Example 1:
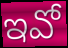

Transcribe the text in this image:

ఇవో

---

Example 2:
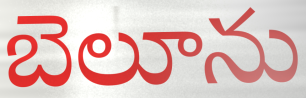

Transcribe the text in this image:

బెలూను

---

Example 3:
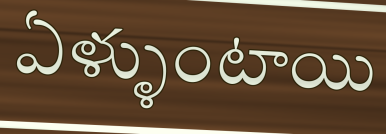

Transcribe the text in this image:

ఏళ్ళుంటాయి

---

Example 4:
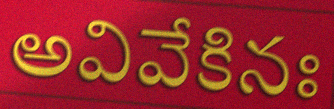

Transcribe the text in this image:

అవివేకినః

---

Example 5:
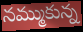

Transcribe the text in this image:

నమ్ముకున్న